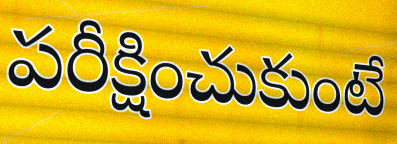
పరీక్షించుకుంటే